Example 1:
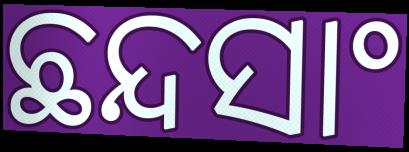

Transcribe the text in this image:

ଛନ୍ଦସାଂ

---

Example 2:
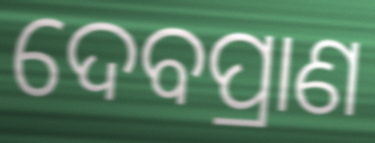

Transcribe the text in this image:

ଦେବପ୍ରାଣ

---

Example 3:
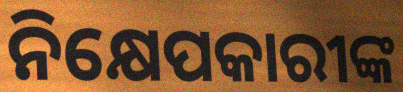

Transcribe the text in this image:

ନିକ୍ଷେପକାରୀଙ୍କ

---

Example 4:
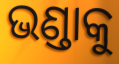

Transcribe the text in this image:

ଭଣ୍ଡାକୁ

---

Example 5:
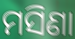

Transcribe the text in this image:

ମସିଣା